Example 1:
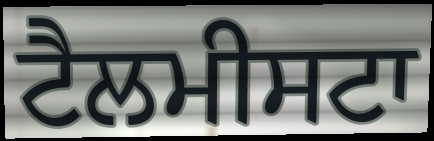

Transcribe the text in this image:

ਟੈਲਮੀਸਟਾ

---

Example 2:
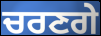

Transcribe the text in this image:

ਚਰਣਗੇ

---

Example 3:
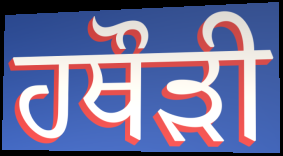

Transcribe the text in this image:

ਹਥੌੜੀ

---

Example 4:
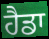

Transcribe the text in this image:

ਹੈਡਾ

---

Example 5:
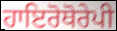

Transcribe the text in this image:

ਹਾਇਰੋਥੋਰੇਪੀ